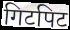
गिटपिट